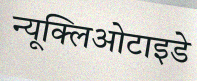
न्यूक्लिओटाइडे